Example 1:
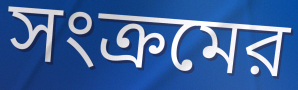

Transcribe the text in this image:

সংক্রমের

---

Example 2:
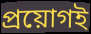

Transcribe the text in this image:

প্রয়োগই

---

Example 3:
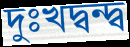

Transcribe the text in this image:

দুঃখদ্বন্দ্ব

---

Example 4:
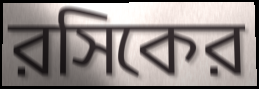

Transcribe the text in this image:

রসিকের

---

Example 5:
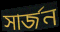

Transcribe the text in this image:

সার্জন